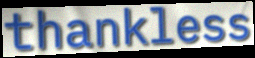
thankless